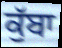
ਕੁੱਬਾ